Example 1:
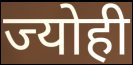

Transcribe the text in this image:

ज्योही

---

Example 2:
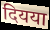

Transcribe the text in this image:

दियया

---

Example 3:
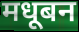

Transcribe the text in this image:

मधूबन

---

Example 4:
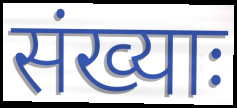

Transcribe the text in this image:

संख्याः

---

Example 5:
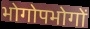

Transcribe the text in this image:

भोगोपभोगों